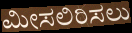
ಮೀಸಲಿರಿಸಲು